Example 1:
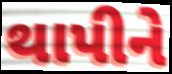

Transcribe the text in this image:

થાપીને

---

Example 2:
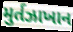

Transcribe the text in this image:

મુર્તઝાખાન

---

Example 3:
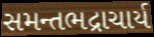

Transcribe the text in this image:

સમન્તભદ્રાચાર્ય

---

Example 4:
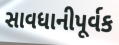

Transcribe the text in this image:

સાવધાનીપૂર્વક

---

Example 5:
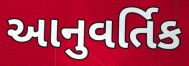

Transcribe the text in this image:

આનુવર્તિક